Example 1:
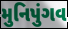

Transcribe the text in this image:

મુનિપુંગવ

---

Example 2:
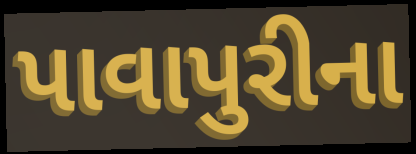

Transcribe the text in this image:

પાવાપુરીના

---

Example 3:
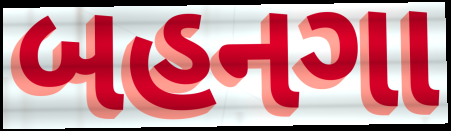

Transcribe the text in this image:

બહનગા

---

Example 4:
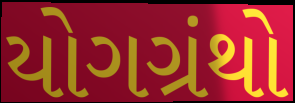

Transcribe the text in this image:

યોગગ્રંથો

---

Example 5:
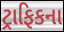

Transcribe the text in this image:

ટ્રાફિકના